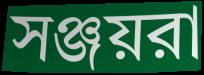
সঞ্জয়রা